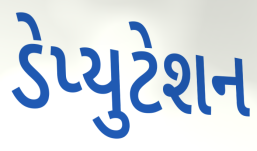
ડેપ્યુટેશન